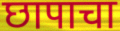
छापाचा